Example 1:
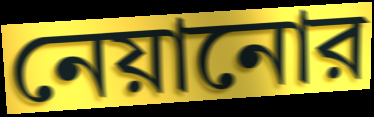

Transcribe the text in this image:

নেয়ানোর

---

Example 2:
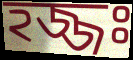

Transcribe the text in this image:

হজ্জঃ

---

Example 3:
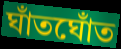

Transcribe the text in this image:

ঘাঁতঘোঁত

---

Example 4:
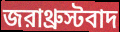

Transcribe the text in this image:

জরাথ্রুস্টবাদ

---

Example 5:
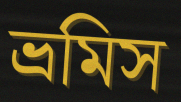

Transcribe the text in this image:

ভ্রমিস